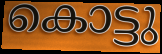
കൊട്ടു